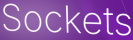
Sockets